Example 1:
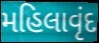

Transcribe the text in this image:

મહિલાવૃંદ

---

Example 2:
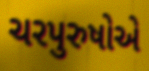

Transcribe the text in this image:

ચરપુરુષોએ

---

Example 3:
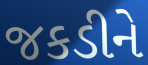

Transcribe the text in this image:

જકડીને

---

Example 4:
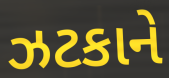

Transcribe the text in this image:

ઝટકાને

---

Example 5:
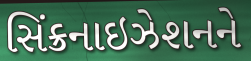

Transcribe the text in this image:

સિંક્રનાઇઝેશનને